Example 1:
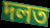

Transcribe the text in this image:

দলত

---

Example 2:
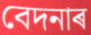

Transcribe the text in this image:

বেদনাৰ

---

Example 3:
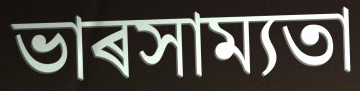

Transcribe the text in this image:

ভাৰসাম্যতা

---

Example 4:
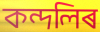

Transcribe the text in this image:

কন্দলিৰ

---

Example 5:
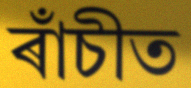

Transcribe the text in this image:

ৰাঁচীত